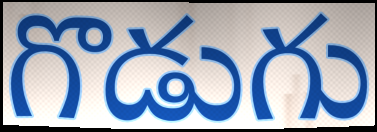
గొడుగు